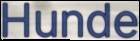
Hunde